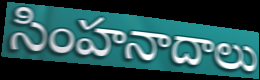
సింహనాదాలు